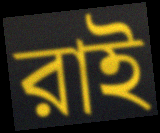
রাই